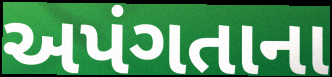
અપંગતાના